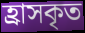
হ্রাসকৃত